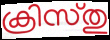
ക്രിസ്തു